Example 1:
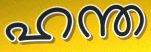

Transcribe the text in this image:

ഹന്ത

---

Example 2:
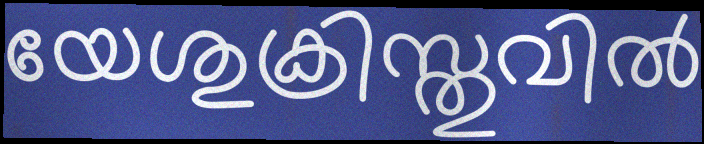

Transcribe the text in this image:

യേശുക്രിസ്തുവിൽ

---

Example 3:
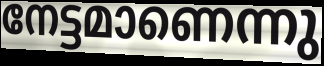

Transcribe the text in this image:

നേട്ടമാണെന്നു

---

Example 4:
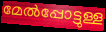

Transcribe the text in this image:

മേൽപ്പോട്ടുള്ള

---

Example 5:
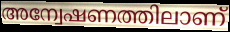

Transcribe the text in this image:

അന്വേഷണത്തിലാണ്